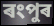
ৰংপুৰ